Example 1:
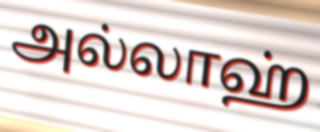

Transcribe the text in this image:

அல்லாஹ்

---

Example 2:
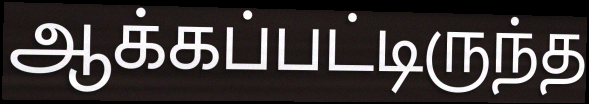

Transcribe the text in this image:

ஆக்கப்பட்டிருந்த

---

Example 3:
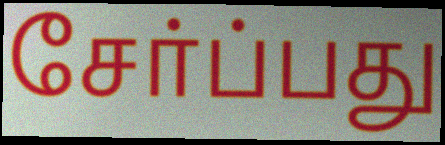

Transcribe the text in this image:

சேர்ப்பது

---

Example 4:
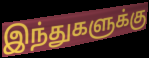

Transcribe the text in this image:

இந்துகளுக்கு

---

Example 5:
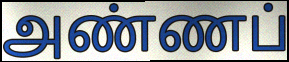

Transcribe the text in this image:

அண்ணப்